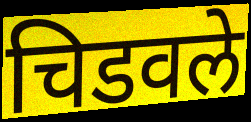
चिडवले